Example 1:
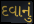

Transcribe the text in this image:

દવાનું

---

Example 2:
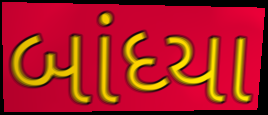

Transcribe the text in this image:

બાંધ્યા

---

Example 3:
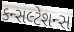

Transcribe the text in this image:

કન્સલ્ટેશન્સ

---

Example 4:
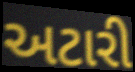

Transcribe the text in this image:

અટારી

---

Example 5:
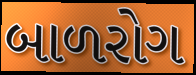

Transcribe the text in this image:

બાળરોગ